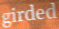
girded